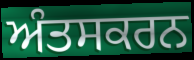
ਅੰਤਸਕਰਨ